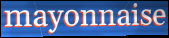
mayonnaise